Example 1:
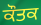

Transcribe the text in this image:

ਕੌਤਕ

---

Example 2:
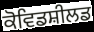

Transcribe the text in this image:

ਕੋਵਿਡਸ਼ੀਲਡ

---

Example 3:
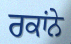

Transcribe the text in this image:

ਰਕਾਂਨੇ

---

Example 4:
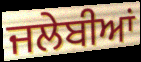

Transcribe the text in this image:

ਜਲੇਬੀਆਂ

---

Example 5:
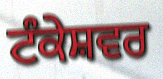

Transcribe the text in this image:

ਟੰਕੇਸ਼ਵਰ